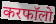
करफॉलो